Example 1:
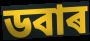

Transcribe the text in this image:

ডবাৰ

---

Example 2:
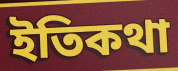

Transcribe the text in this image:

ইতিকথা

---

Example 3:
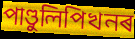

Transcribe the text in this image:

পাণ্ডুলিপিখনৰ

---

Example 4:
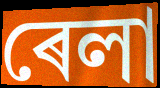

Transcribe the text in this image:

ৰেলা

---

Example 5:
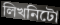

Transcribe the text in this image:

লিখনিটো